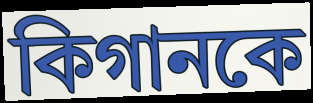
কিগানকে